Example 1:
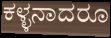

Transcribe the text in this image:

ಕಳ್ಳನಾದರೂ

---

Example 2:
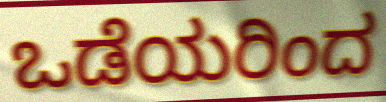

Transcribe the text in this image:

ಒಡೆಯರಿಂದ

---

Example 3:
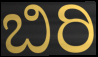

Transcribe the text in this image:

ಬಿರಿ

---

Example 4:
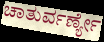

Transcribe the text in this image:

ಚಾತುರ್ವರ್ಣ್ಯೇ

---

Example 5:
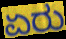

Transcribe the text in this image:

ಏರು